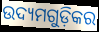
ଉଦ୍ୟମଗୁଡ଼ିକର